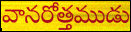
వానరోత్తముడు